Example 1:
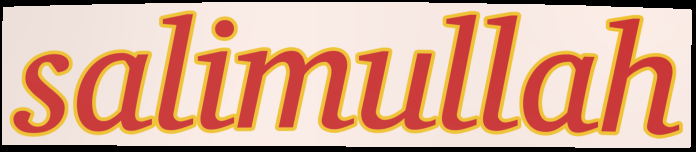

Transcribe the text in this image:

salimullah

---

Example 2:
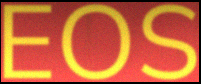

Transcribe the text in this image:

EOS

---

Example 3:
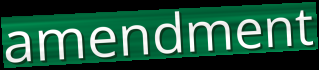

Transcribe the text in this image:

amendment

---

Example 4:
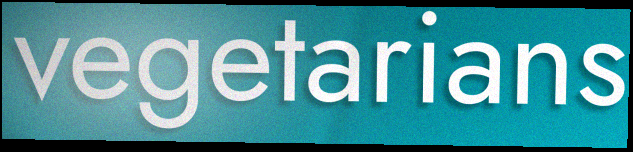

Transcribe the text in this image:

vegetarians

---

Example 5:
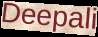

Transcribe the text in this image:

Deepali